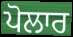
ਪੋਲਾਰ